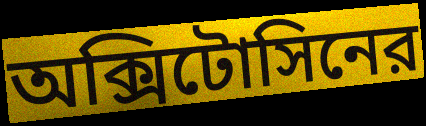
অক্সিটোসিনের